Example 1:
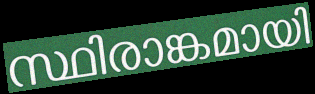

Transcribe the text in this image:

സ്ഥിരാങ്കമായി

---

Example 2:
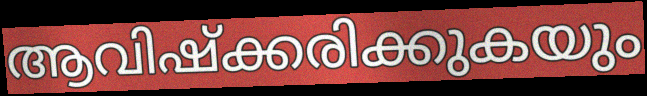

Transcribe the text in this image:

ആവിഷ്ക്കരിക്കുകയും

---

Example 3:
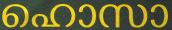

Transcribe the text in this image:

ഹൊസാ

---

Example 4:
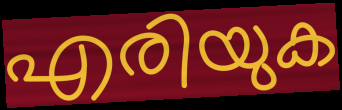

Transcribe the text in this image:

എരിയുക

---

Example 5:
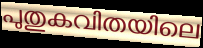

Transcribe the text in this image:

പുതുകവിതയിലെ